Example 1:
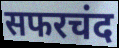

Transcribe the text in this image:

सफरचंद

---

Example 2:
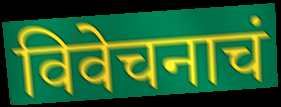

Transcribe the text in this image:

विवेचनाचं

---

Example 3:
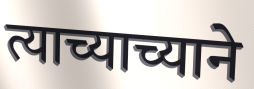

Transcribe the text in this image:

त्याच्याच्याने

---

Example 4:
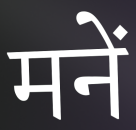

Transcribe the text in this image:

मनें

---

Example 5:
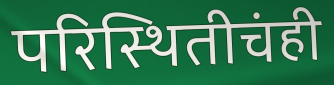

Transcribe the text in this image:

परिस्थितीचंही